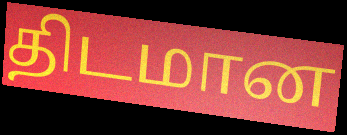
திடமான